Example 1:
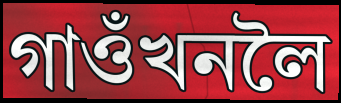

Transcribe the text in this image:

গাওঁখনলৈ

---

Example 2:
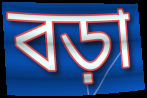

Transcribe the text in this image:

বড়া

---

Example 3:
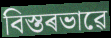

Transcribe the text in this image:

বিস্তৰভাৱে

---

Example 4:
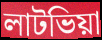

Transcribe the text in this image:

লাটভিয়া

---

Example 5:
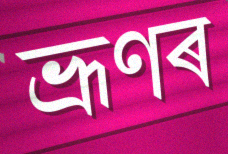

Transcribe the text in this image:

ভ্ৰূণৰ